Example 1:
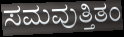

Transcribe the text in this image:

ಸಮವುತ್ತಿತಂ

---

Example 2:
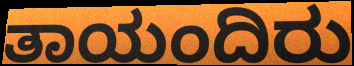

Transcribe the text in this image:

ತಾಯಂದಿರು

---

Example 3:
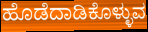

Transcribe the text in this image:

ಹೊಡೆದಾಡಿಕೊಳ್ಳುವ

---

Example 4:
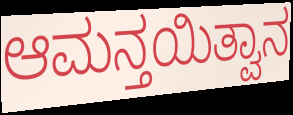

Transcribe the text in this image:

ಆಮನ್ತಯಿತ್ವಾನ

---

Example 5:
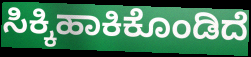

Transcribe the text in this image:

ಸಿಕ್ಕಿಹಾಕಿಕೊಂಡಿದೆ